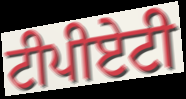
ਟੀਪੀਏਟੀ